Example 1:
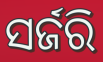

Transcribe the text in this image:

ସର୍ଜରି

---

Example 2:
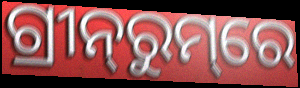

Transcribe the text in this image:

ଗ୍ରୀନ୍‌ରୁମ୍‌ରେ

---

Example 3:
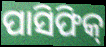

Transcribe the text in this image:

ପାସିଫିକ୍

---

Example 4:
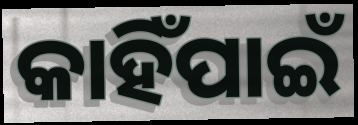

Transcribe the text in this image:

କାହିଁପାଇଁ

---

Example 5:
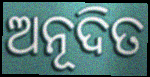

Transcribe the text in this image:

ଅନୂଦିତ